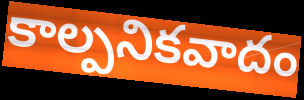
కాల్పనికవాదం